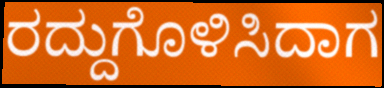
ರದ್ದುಗೊಳಿಸಿದಾಗ